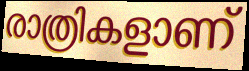
രാത്രികളാണ്